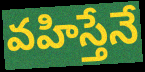
వహిస్తేనే